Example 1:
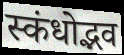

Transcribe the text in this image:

स्कंधोद्भव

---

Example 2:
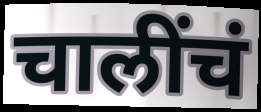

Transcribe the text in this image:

चालींचं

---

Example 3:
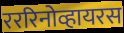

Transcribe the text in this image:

रररिनोव्हायरस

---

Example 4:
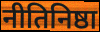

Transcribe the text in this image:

नीतिनिष्ठा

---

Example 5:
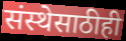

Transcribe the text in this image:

संस्थेसाठीही